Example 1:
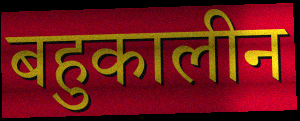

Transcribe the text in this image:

बहुकालीन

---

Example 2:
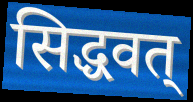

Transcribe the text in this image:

सिद्धवत्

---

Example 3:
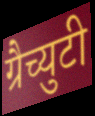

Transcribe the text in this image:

ग्रैच्युटी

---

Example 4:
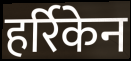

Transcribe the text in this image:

हर्रिकेन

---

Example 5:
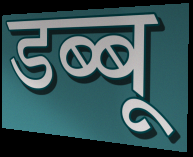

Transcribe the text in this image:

डब्बू